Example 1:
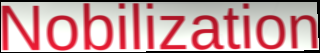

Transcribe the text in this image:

Nobilization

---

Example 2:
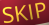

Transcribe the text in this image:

SKIP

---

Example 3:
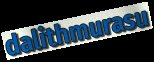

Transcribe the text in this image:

dalithmurasu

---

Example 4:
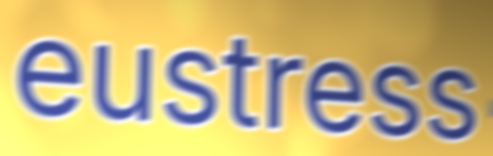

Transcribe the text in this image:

eustress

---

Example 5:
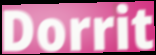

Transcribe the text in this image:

Dorrit